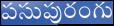
పసుపురంగు